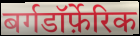
बर्गडॉर्फ़ेरिक